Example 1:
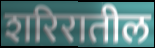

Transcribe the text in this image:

शरिरातील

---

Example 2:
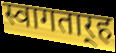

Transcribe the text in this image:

स्वागतार्ह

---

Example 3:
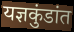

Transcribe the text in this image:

यज्ञकुंडांत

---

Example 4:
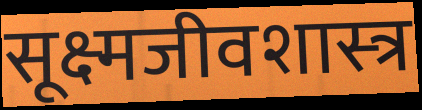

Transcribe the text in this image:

सूक्ष्मजीवशास्त्र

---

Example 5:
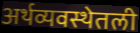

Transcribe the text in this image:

अर्थव्यवस्थेतली